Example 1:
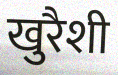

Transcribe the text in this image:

खुरैशी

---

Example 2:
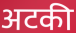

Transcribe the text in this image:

अटकी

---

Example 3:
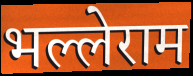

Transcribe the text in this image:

भल्लेराम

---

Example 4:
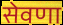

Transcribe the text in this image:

सेवणा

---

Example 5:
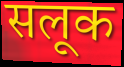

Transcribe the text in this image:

सलूक